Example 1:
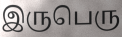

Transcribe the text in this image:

இருபெரு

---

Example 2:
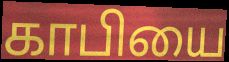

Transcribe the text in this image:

காபியை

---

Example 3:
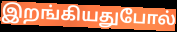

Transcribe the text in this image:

இறங்கியதுபோல்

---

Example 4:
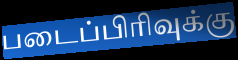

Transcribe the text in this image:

படைப்பிரிவுக்கு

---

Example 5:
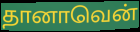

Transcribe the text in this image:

தானாவென்